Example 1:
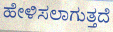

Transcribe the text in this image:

ಹೇಳಿಸಲಾಗುತ್ತದೆ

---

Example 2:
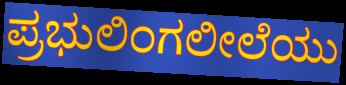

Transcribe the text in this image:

ಪ್ರಭುಲಿಂಗಲೀಲೆಯು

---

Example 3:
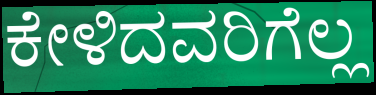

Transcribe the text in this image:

ಕೇಳಿದವರಿಗೆಲ್ಲ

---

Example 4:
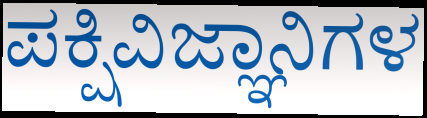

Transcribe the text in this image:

ಪಕ್ಷಿವಿಜ್ಞಾನಿಗಳ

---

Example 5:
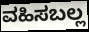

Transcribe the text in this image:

ವಹಿಸಬಲ್ಲ